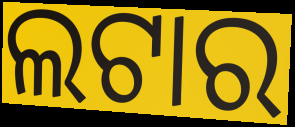
ଲଟାର